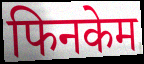
फिनकेम